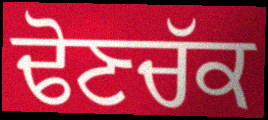
ਢੋਣਚੱਕ